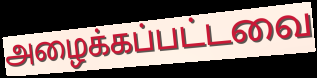
அழைக்கப்பட்டவை